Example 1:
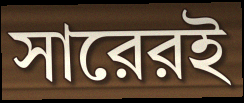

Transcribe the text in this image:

সারেরই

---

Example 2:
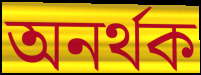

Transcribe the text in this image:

অনর্থক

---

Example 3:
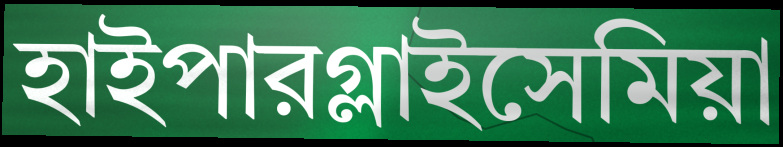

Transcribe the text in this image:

হাইপারগ্লাইসেমিয়া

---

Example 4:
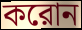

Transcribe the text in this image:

করোন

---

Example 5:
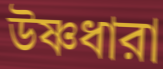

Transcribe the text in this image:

উষ্ণধারা